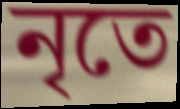
নৃতে